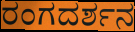
ರಂಗದರ್ಶನ